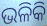
ଭଳିକି